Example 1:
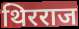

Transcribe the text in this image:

थिरराज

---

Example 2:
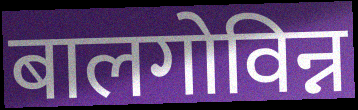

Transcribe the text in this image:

बालगोविन्न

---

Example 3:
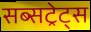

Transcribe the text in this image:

सब्सट्रेट्स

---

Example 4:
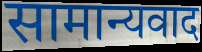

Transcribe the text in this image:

सामान्यवाद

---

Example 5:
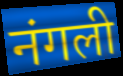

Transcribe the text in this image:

नंगली